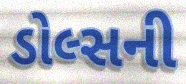
ડોલ્સની